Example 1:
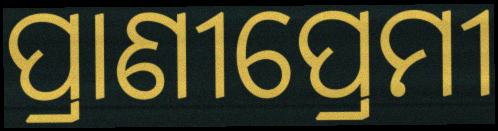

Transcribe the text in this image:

ପ୍ରାଣୀପ୍ରେମୀ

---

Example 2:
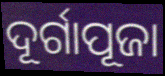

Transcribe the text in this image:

ଦୂର୍ଗାପୂଜା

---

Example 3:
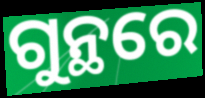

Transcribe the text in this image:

ଗୁନ୍ଥରେ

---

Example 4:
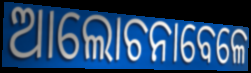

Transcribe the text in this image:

ଆଲୋଚନାବେଳେ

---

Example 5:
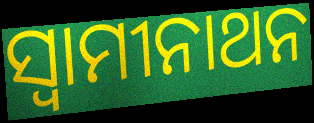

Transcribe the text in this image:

ସ୍ୱାମୀନାଥନ